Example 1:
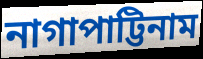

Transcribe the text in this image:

নাগাপাট্টিনাম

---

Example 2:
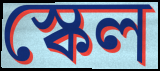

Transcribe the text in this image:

স্কেল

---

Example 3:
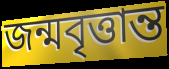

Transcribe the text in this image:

জন্মবৃত্তান্ত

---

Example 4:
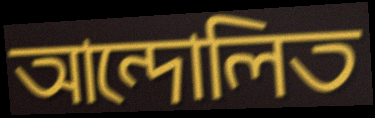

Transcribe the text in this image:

আন্দোলিত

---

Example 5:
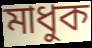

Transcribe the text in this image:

মাধুক